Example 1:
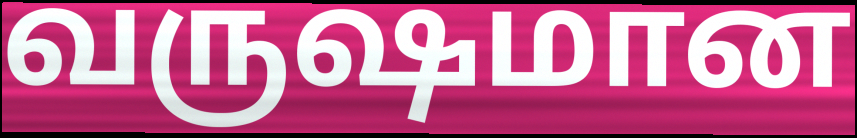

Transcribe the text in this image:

வருஷமான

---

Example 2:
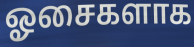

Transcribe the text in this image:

ஓசைகளாக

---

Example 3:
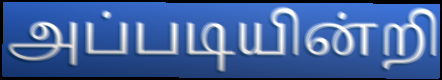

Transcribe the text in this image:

அப்படியின்றி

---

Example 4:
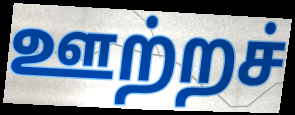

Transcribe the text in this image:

ஊற்றச்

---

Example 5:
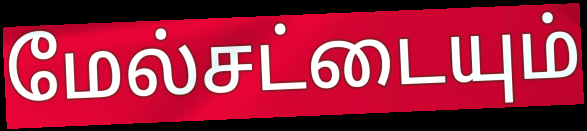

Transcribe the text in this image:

மேல்சட்டையும்